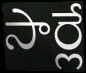
సార్లే